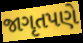
જાગૃતપણે